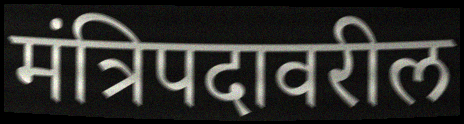
मंत्रिपदावरील